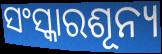
ସଂସ୍କାରଶୂନ୍ୟ